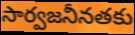
సార్వజనీనతకు